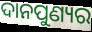
ଦାନପୁଣ୍ୟର